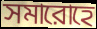
সমারোহে